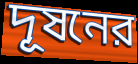
দূষনের